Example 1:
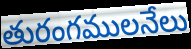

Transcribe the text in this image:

తురంగములనేలు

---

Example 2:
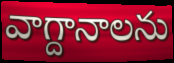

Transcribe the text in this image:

వాగ్దానాలను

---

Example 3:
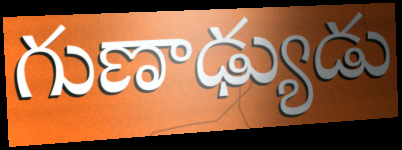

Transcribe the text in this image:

గుణాఢ్యుడు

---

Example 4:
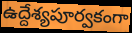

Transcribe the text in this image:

ఉద్దేశ్యపూర్వకంగా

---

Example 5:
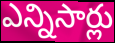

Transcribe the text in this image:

ఎన్నిసార్లు